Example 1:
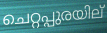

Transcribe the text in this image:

ചെറ്റപ്പുരയില്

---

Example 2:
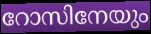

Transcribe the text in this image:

റോസിനേയും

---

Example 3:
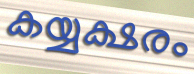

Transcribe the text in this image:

കയ്യക്ഷരം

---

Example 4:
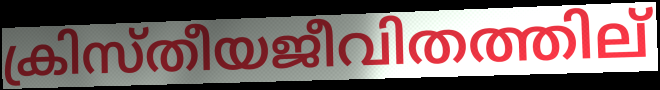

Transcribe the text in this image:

ക്രിസ്തീയജീവിതത്തില്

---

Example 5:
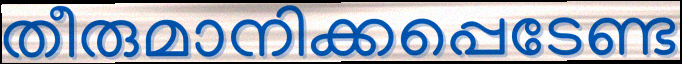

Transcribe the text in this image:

തീരുമാനിക്കപ്പെടേണ്ട